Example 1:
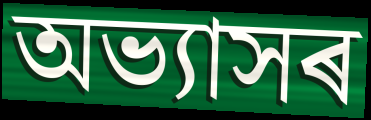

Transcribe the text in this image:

অভ্যাসৰ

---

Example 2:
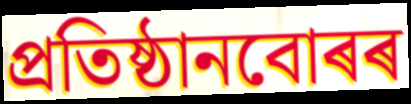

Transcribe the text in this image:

প্ৰতিষ্ঠানবোৰৰ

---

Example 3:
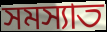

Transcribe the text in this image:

সমস্যাত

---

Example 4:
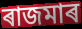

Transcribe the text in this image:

ৰাজমাৰ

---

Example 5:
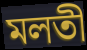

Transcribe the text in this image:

মলতী